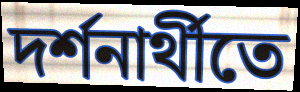
দর্শনার্থীতে